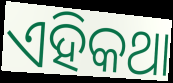
ଏହିକଥା